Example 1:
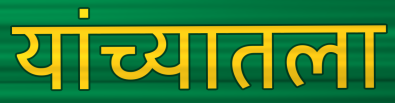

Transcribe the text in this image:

यांच्यातला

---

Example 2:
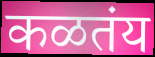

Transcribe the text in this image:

कळतंय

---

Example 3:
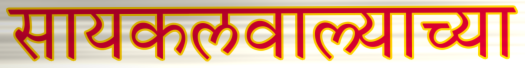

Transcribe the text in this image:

सायकलवाल्याच्या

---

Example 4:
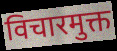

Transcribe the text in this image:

विचारमुक्त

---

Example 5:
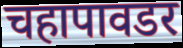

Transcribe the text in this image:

चहापावडर